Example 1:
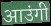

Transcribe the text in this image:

आउंगी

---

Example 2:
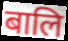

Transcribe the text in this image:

बालि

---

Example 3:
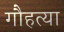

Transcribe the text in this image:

गौहत्या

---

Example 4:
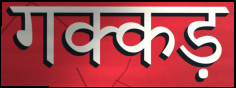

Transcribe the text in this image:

गक्कड़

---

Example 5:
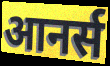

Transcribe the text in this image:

आनर्स